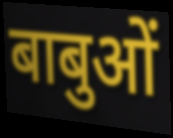
बाबुओं